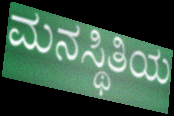
ಮನಸ್ಥಿತಿಯ